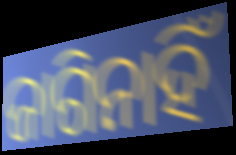
ଜାଗିନାହିଁ